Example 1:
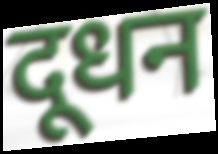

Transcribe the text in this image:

दूधन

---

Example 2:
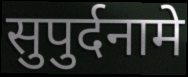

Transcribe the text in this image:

सुपुर्दनामे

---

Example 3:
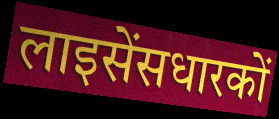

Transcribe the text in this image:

लाइसेंसधारकों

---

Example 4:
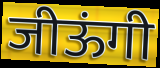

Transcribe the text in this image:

जीऊंगी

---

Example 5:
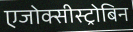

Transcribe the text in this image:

एजोक्सीस्ट्रोबिन